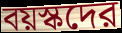
বয়স্কদের